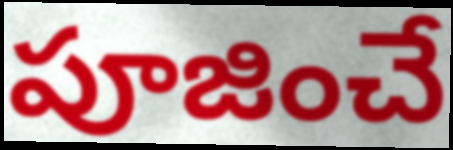
పూజించే